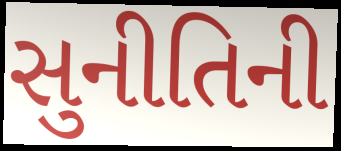
સુનીતિની